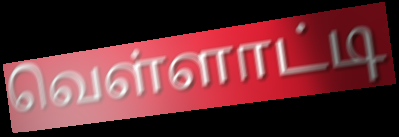
வெள்ளாட்டி